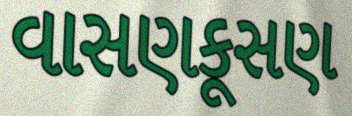
વાસણકૂસણ